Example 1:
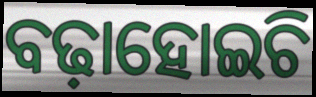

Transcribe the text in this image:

ବଢ଼ାହୋଇଚି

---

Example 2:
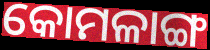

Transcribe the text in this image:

କୋମଳାଙ୍ଗ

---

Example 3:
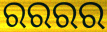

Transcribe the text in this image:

ରରରର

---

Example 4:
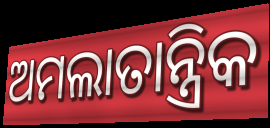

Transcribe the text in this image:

ଅମଲାତାନ୍ତ୍ରିକ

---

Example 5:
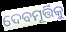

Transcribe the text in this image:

ଦେବମୂର୍ତ୍ତିକୁ